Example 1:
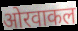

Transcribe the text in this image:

ओरवाकल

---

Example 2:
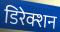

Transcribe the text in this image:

डिरेक्शन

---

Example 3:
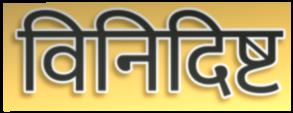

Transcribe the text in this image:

विनिदिष्ट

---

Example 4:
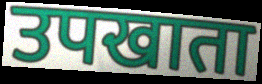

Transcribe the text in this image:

उपखाता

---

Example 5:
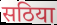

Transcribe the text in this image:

सठिया